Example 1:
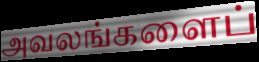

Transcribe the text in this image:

அவலங்களைப்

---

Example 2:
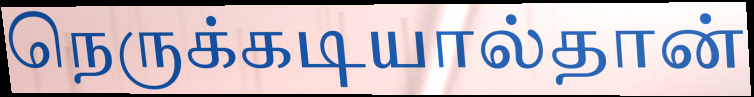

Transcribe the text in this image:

நெருக்கடியால்தான்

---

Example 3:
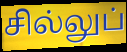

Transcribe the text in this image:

சில்லுப்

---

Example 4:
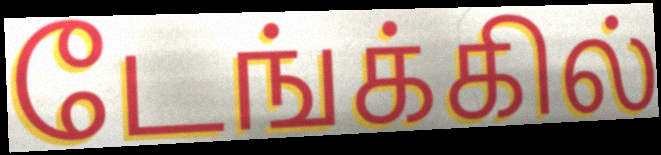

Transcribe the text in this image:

டேங்க்கில்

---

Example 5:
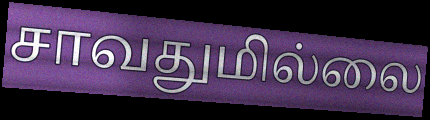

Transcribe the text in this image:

சாவதுமில்லை